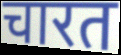
चारत